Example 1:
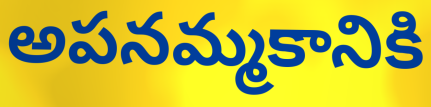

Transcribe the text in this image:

అపనమ్మకానికి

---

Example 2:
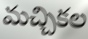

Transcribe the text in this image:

మచ్చికల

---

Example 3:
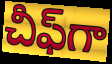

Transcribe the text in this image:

చీఫ్‌గా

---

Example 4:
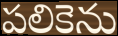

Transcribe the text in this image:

పలికెను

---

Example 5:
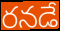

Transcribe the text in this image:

రనడే